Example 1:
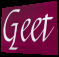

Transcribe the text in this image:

Geet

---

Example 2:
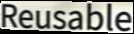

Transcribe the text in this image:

Reusable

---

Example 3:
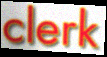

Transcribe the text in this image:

clerk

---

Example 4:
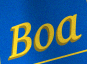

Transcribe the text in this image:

Boa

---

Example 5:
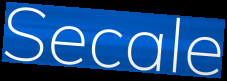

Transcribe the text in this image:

Secale